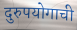
दुरुपयोगाची